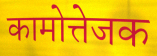
कामोत्तेजक